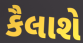
કૈલાશે